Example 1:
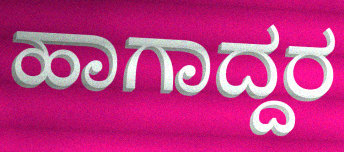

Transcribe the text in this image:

ಹಾಗಾದ್ದರ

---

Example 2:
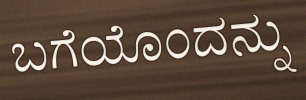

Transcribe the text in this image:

ಬಗೆಯೊಂದನ್ನು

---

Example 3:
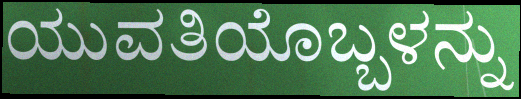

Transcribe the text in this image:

ಯುವತಿಯೊಬ್ಬಳನ್ನು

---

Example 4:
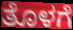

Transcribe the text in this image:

ತೊಳಗೆ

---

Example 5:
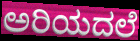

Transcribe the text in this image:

ಅರಿಯದಲೆ